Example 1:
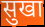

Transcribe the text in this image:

सुखा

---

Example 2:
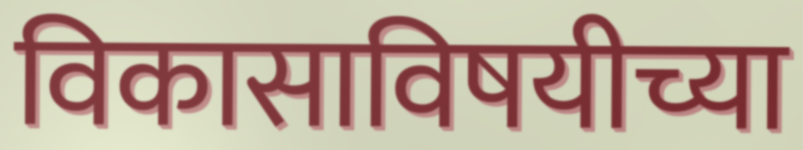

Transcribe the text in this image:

विकासाविषयीच्या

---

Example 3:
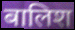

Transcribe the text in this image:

बालिश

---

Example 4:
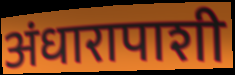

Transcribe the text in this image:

अंधारापाशी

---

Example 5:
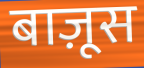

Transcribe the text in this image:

बाज़ूस